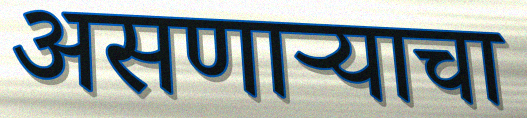
असणाऱ्याचा